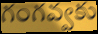
గంగవ్వకు